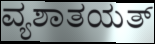
ವ್ಯಶಾತಯತ್